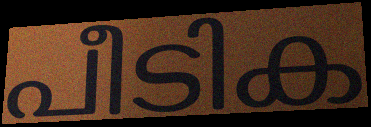
പീടിക